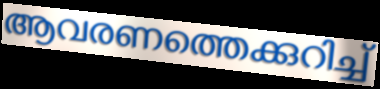
ആവരണത്തെക്കുറിച്ച്